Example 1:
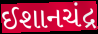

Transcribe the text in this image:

ઈશાનચંદ્ર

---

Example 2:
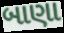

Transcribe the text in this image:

બાણા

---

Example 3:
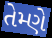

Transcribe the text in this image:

તેમ્ણે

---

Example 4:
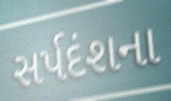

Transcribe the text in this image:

સર્પદંશના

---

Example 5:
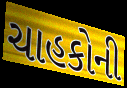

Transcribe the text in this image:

ચાહકોની